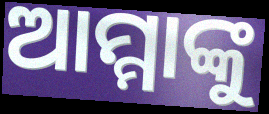
ଆମ୍ମାଙ୍କୁ